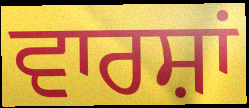
ਵਾਰਸ਼ਾਂ